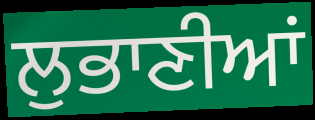
ਲੁਭਾਣੀਆਂ